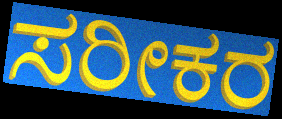
ಸರೀಕರ